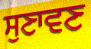
ਸੁਣਾਵਣ